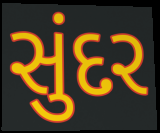
સુંદર